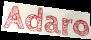
Adaro